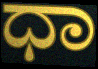
ಧಾ